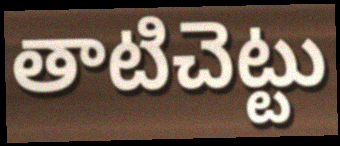
తాటిచెట్టు